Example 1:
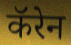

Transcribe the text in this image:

कॅरेन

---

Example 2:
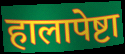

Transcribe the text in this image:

हालापेष्टा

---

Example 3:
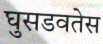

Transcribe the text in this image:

घुसडवतेस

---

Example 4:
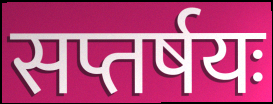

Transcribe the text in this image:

सप्तर्षयः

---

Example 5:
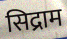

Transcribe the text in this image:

सिद्राम